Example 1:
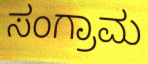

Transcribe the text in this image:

ಸಂಗ್ರಾಮ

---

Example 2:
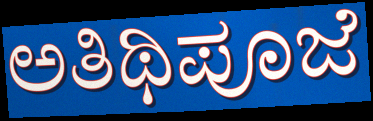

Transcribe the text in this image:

ಅತಿಥಿಪೂಜೆ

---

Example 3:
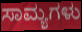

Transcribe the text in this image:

ಸಾಮ್ಯಗಳು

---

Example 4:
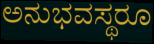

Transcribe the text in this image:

ಅನುಭವಸ್ಥರೂ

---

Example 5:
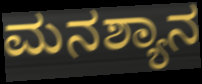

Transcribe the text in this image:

ಮನಶ್ಯಾನ